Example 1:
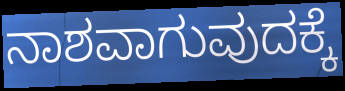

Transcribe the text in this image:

ನಾಶವಾಗುವುದಕ್ಕೆ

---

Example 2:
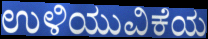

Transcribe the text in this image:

ಉಳಿಯುವಿಕೆಯ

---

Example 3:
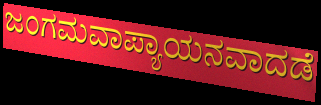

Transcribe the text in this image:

ಜಂಗಮವಾಪ್ಯಾಯನವಾದಡೆ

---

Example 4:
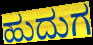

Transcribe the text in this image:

ಹುದುಗ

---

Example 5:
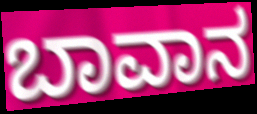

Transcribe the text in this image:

ಬಾವಾನ